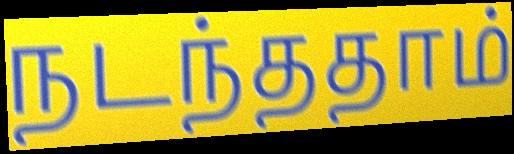
நடந்ததாம்